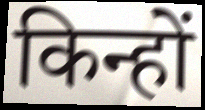
किन्हों